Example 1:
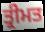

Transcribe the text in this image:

ਤ੍ਰੀਮਤ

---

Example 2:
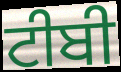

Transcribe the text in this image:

ਟੀਬੀ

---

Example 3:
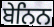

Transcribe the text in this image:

ਬੇਨਿਨ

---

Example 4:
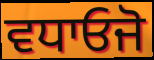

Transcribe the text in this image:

ਵਧਾਓਜੋ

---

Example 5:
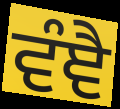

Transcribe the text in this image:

ਵੰਞੈ